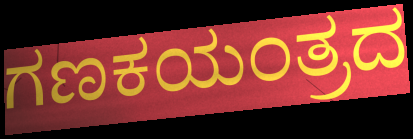
ಗಣಕಯಂತ್ರದ